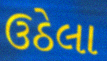
ઉઠેલા